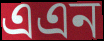
এএন